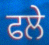
ਫਲੇ